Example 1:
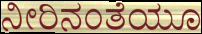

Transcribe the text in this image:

ನೀರಿನಂತೆಯೂ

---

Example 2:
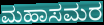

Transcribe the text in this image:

ಮಹಾಸಮರ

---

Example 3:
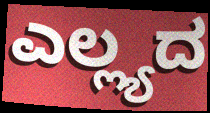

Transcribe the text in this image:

ಎಲ್ಲ್ಯದ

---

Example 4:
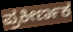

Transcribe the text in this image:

ಪ್ರಕೀರ್ಣಕ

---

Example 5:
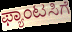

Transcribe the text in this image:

ಫ್ಯಾಂಟಸಿಗೆ